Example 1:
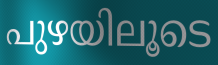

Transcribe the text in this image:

പുഴയിലൂടെ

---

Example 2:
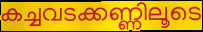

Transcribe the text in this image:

കച്ചവടക്കണ്ണിലൂടെ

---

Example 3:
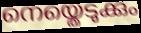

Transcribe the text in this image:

നെയ്തെടുക്കും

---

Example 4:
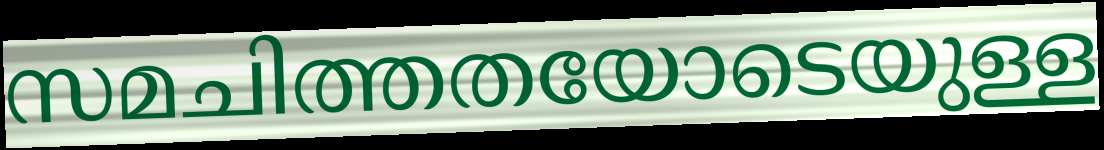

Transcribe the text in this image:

സമചിത്തതയോടെയുള്ള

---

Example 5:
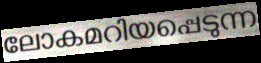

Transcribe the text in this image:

ലോകമറിയപ്പെടുന്ന